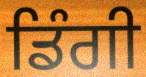
ਡਿੰਗੀ